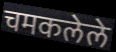
चमकलेले